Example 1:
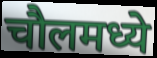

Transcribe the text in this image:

चौलमध्ये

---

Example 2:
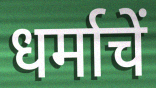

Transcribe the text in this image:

धर्माचें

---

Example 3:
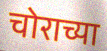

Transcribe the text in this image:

चोराच्या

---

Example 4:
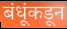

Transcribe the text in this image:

बंधूंकडून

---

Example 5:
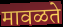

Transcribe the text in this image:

मावळते